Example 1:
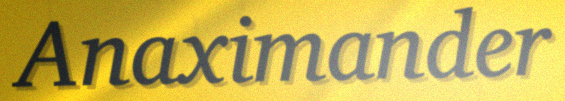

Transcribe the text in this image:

Anaximander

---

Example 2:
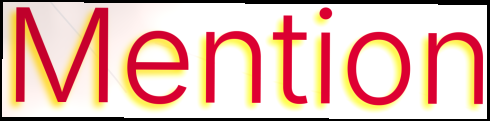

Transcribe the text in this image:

Mention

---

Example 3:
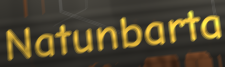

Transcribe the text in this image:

Natunbarta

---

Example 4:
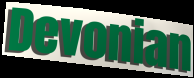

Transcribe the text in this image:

Devonian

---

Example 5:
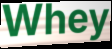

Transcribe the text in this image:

Whey